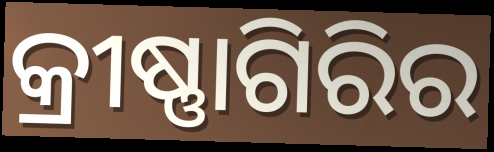
କ୍ରୀଷ୍ଣାଗିରିର